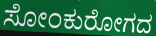
ಸೋಂಕುರೋಗದ